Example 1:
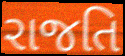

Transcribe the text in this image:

રાજતિ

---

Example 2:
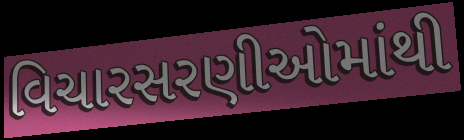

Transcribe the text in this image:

વિચારસરણીઓમાંથી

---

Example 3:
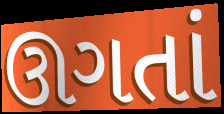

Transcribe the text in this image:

ઊગતાં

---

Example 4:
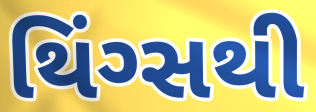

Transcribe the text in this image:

થિંગ્સથી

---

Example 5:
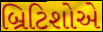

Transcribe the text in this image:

બ્રિટિશોએ